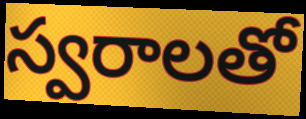
స్వరాలతో